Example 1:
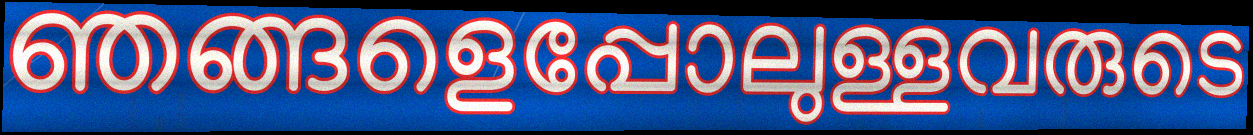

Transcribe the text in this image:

ഞങ്ങളെപ്പോലുള്ളവരുടെ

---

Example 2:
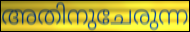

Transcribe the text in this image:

അതിനുചേരുന്ന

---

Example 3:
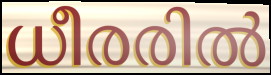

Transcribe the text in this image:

ധീരരിൽ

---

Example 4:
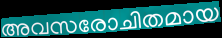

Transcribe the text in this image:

അവസരോചിതമായ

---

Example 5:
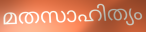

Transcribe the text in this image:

മതസാഹിത്യം